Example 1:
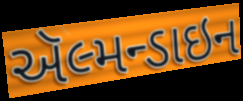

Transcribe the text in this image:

ઍલ્મન્ડાઇન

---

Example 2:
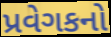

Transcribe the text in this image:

પ્રવેગકનો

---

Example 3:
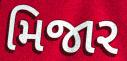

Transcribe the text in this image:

મિજાર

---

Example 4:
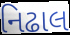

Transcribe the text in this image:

નિઢાલ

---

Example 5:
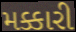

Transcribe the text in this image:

મક્કારી